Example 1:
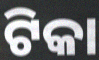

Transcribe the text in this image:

ଟିକା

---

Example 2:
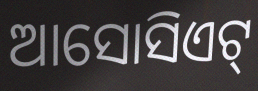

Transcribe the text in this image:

ଆସୋସିଏଟ୍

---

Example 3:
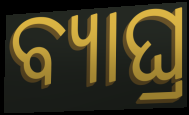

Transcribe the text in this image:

ବ୍ୟାଘ୍ର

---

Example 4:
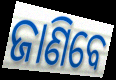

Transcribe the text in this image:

ଜାଣିବେ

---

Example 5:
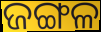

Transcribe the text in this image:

ଜଙ୍ଗଳ